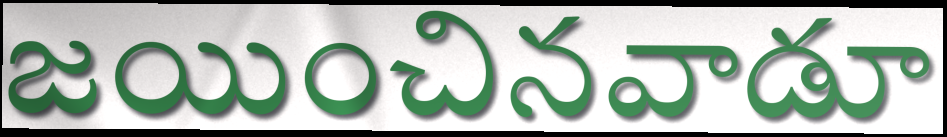
జయించినవాడూ